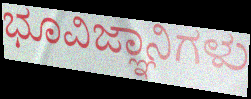
ಭೂವಿಜ್ಞಾನಿಗಳು